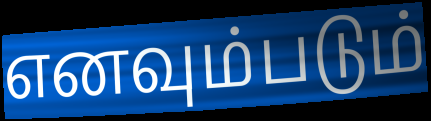
எனவும்படும்